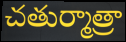
చతుర్మాత్రా